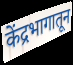
केंद्रभागातून